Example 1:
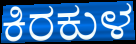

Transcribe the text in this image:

ಕಿರಕುಳ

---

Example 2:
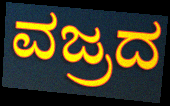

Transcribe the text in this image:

ವಜ್ರದ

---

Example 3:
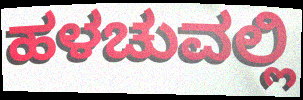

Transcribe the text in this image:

ಹಳಚುವಲ್ಲಿ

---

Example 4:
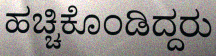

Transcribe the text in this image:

ಹಚ್ಚಿಕೊಂಡಿದ್ದರು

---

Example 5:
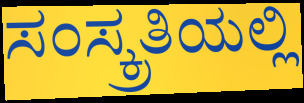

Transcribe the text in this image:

ಸಂಸ್ಕ್ರತಿಯಲ್ಲಿ